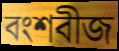
বংশবীজ